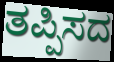
ತಪ್ಪಿಸದ